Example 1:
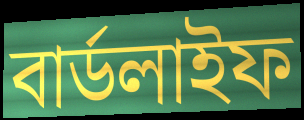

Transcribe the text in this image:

বার্ডলাইফ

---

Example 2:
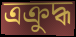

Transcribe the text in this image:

ত্রক্রুদ্ধ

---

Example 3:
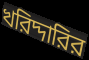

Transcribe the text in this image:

খরিদ্দারির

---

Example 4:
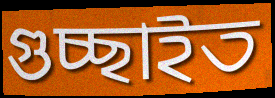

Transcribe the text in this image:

গুচ্ছাইত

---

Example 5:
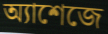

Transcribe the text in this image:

অ্যাশেজে